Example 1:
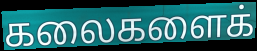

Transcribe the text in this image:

கலைகளைக்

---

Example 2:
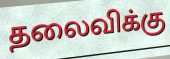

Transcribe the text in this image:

தலைவிக்கு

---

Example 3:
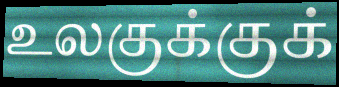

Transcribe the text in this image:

உலகுக்குக்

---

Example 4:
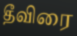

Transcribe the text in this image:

தீவிரை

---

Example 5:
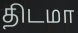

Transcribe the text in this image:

திடமா